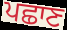
ਪਛਾਣ